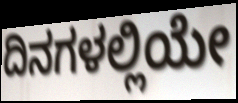
ದಿನಗಳಲ್ಲಿಯೇ